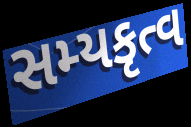
સમ્યકૃત્વ